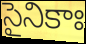
సైనికాః